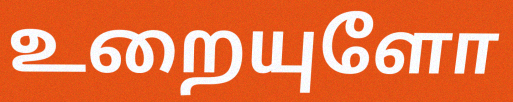
உறையுளோ